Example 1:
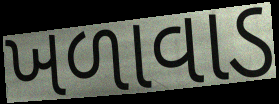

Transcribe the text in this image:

ખળાવાડ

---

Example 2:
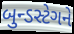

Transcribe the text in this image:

બુન્ડસ્ટેગને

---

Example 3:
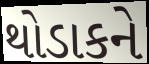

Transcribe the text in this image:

થોડાકને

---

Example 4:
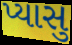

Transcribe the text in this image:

પ્યાસુ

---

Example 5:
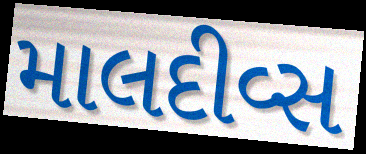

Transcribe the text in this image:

માલદીવ્સ